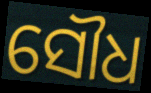
ସୌଧ